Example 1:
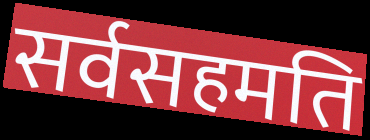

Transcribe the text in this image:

सर्वसहमति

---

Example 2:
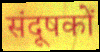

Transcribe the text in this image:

संदूषकों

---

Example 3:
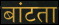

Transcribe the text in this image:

बांटता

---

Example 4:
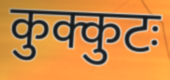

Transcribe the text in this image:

कुक्कुटः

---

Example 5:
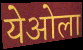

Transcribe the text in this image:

येओला